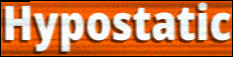
Hypostatic